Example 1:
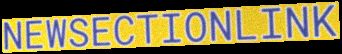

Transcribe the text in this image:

NEWSECTIONLINK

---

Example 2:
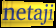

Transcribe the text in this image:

netaji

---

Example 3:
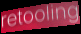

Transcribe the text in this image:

retooling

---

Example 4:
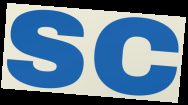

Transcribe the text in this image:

sc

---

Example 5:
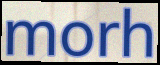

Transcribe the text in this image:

morh